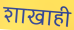
शाखाही